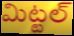
మిట్టల్